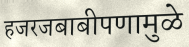
हजरजबाबीपणामुळे